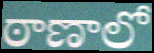
ఠాణాలో